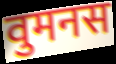
वुमनस